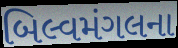
બિલ્વમંગલના